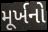
મૂર્ખનો